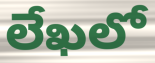
లేఖలో